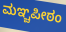
ಮಞ್ಚಪೀಠಂ